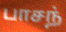
பாசந்